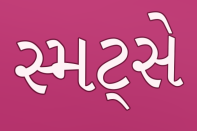
સ્મટ્સે